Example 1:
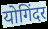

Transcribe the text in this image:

योगिंदर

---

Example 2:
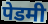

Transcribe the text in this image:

पेडमी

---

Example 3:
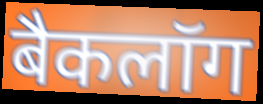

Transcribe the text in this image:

बैकलॉग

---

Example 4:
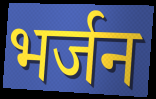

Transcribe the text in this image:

भर्जन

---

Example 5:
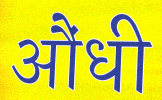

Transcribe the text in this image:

औंधी